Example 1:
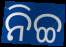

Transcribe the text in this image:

ନିଚ୍ଚ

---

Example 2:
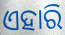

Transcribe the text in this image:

ଏହାରି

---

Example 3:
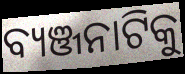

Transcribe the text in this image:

ବ୍ୟଞ୍ଜନାଟିକୁ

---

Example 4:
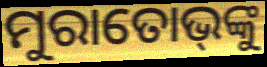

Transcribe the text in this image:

ମୁରାତୋଭ୍‌ଙ୍କୁ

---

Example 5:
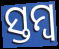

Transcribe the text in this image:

ସ୍ତମ୍ବ